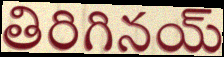
తిరిగినయ్